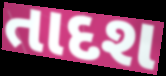
તાદશ